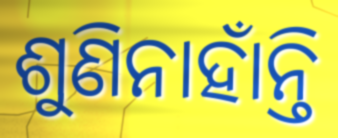
ଶୁଣିନାହାଁନ୍ତି